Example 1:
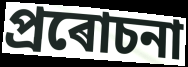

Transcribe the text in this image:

প্ৰৰোচনা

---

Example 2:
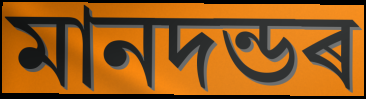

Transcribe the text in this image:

মানদন্ডৰ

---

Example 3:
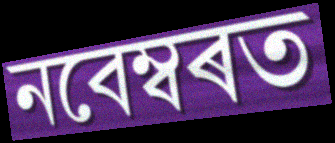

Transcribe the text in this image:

নবেম্বৰত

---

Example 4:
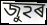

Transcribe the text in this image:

জুহৰ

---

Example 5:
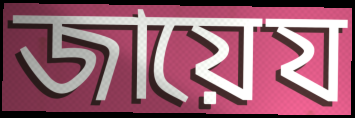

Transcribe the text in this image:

জায়েয